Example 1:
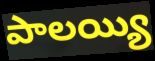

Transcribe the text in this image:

పాలయ్యి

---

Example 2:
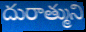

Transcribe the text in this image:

దురాత్ముని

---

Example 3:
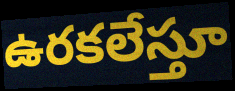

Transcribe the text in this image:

ఉరకలేస్తూ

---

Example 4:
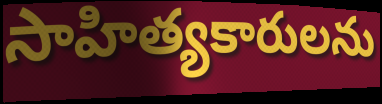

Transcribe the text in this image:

సాహిత్యకారులను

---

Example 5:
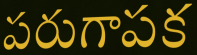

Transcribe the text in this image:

పరుగాపక